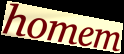
homem